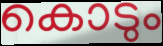
കൊടും